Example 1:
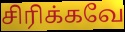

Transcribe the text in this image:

சிரிக்கவே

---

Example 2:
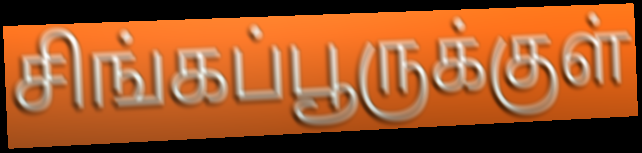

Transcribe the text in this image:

சிங்கப்பூருக்குள்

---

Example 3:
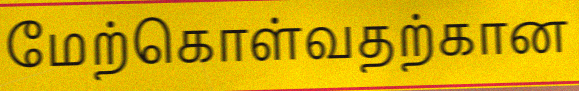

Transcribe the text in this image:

மேற்கொள்வதற்கான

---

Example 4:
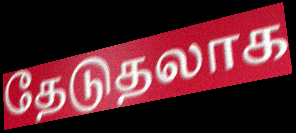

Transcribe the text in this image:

தேடுதலாக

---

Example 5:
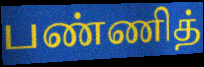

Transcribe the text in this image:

பண்ணித்